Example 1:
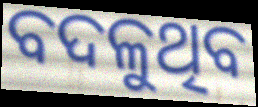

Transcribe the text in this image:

ବଦଳୁଥିବ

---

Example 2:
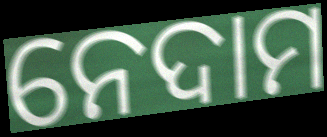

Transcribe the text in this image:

ନେଦାମ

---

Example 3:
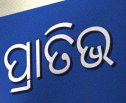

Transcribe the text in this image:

ପ୍ରାତିଭ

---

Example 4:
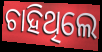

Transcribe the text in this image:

ଚାହିଥିଲେ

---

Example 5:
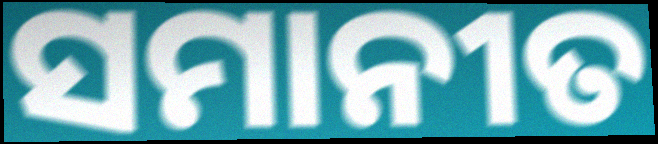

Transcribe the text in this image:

ସମାନୀତ